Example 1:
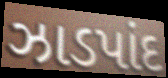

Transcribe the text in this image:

ઝાડપાંદ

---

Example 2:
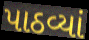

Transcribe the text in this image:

પાઠવ્યાં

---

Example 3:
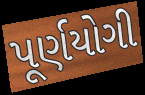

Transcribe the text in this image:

પૂર્ણયોગી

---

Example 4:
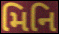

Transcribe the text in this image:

મિનિ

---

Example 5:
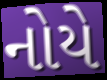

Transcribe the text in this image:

નોયે